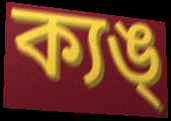
ক্যঙ্